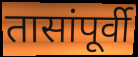
तासांपूर्वी